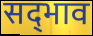
सद्‍भाव